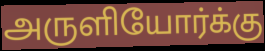
அருளியோர்க்கு